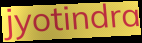
jyotindra